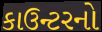
કાઉન્ટરનો